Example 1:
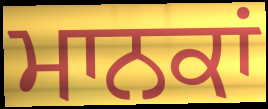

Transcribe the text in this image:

ਮਾਨਕਾਂ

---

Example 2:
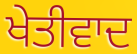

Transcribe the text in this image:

ਖੇਤੀਵਾਦ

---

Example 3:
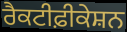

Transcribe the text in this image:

ਰੈਕਟੀਫ਼ੀਕੇਸ਼ਨ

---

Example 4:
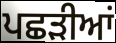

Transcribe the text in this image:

ਪਛੜੀਆਂ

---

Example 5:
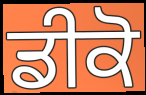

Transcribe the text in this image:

ਡੀਕੋ